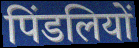
पिंडलियों